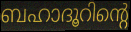
ബഹാദൂറിന്റെ